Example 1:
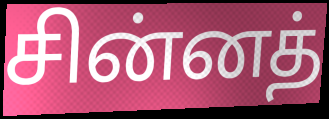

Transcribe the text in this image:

சின்னத்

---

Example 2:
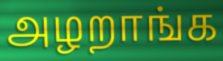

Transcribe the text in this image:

அழறாங்க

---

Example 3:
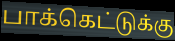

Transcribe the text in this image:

பாக்கெட்டுக்கு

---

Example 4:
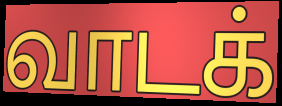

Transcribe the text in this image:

வாடக்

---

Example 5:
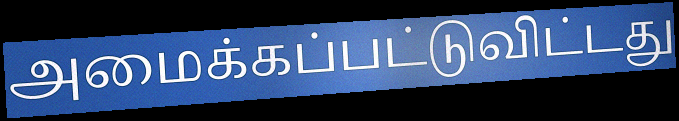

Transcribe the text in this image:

அமைக்கப்பட்டுவிட்டது